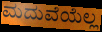
ಮದುವೆಯೆಲ್ಲ